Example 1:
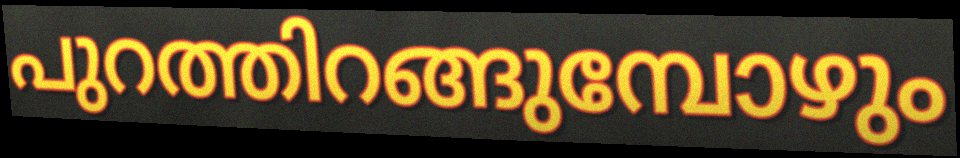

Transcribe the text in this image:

പുറത്തിറങ്ങുമ്പോഴും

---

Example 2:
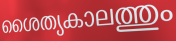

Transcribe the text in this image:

ശൈത്യകാലത്തും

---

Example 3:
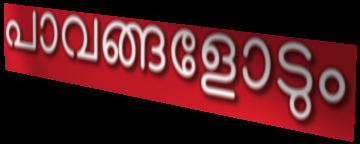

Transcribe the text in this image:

പാവങ്ങളോടും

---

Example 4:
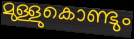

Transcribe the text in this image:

മുള്ളുകൊണ്ടും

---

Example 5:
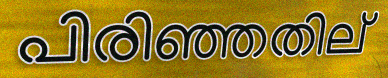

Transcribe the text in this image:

പിരിഞ്ഞതില്